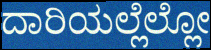
ದಾರಿಯಲ್ಲೆಲ್ಲೋ